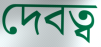
দেবত্ব